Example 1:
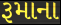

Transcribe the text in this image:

રૂમાના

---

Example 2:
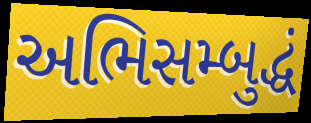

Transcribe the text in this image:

અભિસમ્બુદ્ધં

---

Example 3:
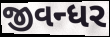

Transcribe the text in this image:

જીવન્ધર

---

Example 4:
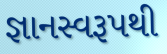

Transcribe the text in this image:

જ્ઞાનસ્વરૂપથી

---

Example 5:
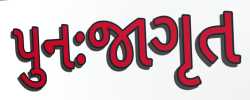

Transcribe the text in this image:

પુનઃજાગૃત